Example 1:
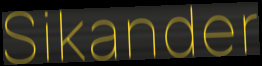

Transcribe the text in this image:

Sikander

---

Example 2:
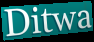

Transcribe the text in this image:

Ditwa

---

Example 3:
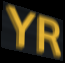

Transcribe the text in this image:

YR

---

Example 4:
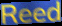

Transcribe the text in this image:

Reed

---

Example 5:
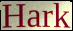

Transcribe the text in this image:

Hark